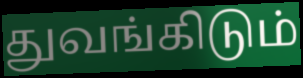
துவங்கிடும்